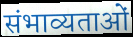
संभाव्यताओं